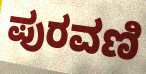
ಪುರವಣಿ